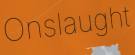
Onslaught